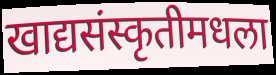
खाद्यसंस्कृतीमधला